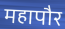
महापौर